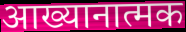
आख्यानात्मक